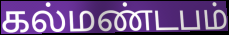
கல்மண்டபம்